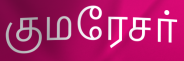
குமரேசர்